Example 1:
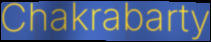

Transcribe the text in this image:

Chakrabarty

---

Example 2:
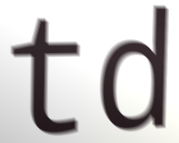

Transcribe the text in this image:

td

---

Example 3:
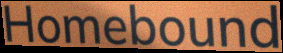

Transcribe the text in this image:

Homebound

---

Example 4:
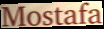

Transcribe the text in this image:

Mostafa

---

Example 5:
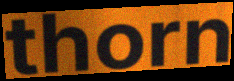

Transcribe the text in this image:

thorn